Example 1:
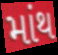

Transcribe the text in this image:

માંથ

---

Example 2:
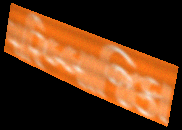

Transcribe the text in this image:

પરિબ્બાજિકા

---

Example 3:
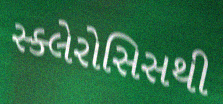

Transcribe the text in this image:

સ્ક્લેરોસિસથી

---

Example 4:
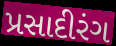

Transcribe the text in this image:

પ્રસાદીરંગ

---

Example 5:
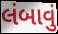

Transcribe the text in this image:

લંબાવું